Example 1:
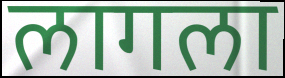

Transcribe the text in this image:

लागला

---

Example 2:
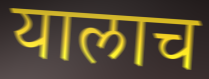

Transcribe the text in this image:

यालाच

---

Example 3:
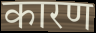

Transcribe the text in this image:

कारण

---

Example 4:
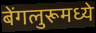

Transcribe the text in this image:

बेंगलुरूमध्ये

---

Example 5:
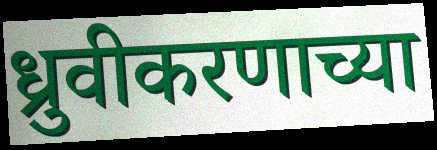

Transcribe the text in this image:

ध्रुवीकरणाच्या